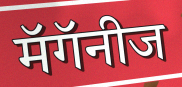
मॅगॅनीज